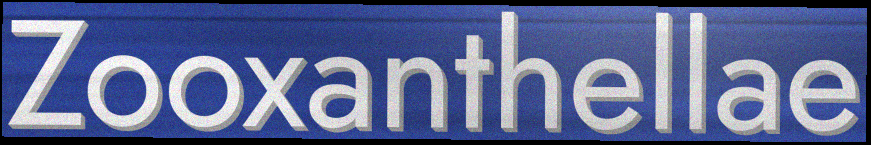
Zooxanthellae